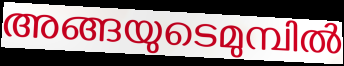
അങ്ങയുടെമുമ്പിൽ